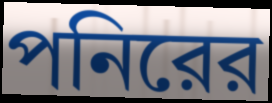
পনিরের